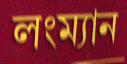
লংম্যান